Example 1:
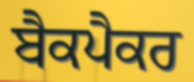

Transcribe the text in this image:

ਬੈਕਪੈਕਰ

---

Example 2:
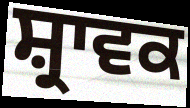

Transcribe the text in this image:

ਸ਼੍ਰਾਵਕ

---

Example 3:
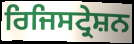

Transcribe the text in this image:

ਰਿਜਿਸਟ੍ਰੇਸ਼ਨ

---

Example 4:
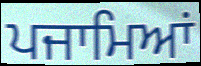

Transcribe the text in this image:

ਪਜਾਮਿਆਂ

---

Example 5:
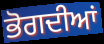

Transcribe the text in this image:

ਭੋਗਦੀਆਂ